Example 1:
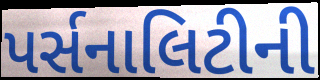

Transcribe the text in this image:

પર્સનાલિટીની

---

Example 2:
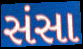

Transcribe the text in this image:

સંસા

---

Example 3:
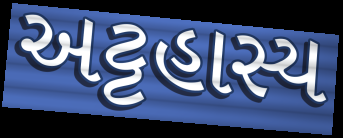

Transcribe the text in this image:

અટ્ટહાસ્ય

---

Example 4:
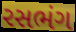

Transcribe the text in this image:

રસભંગ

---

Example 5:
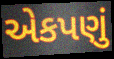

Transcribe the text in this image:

એકપણું